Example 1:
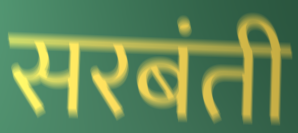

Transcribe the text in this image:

सरबंती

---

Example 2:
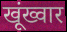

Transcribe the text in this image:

खूंख्वार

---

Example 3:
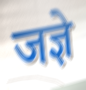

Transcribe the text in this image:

जज्ञे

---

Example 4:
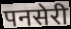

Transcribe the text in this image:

पनसेरी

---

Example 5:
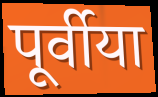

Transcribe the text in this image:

पूर्वीया